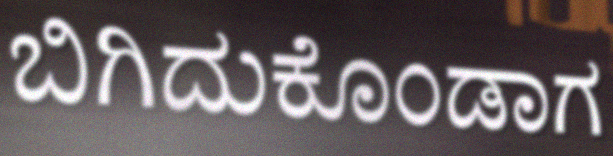
ಬಿಗಿದುಕೊಂಡಾಗ